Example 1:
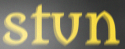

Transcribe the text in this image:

stun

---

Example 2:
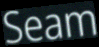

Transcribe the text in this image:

Seam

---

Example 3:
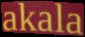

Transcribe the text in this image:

akala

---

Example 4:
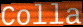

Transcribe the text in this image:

Colla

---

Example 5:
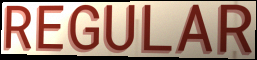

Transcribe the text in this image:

REGULAR